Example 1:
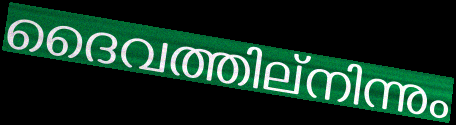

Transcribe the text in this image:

ദൈവത്തില്നിന്നും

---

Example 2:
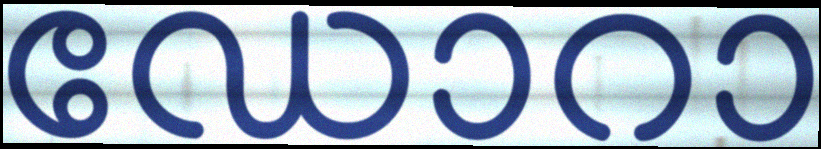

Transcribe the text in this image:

ഡോറാ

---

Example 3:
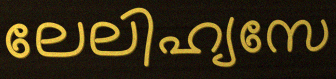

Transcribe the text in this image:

ലേലിഹ്യസേ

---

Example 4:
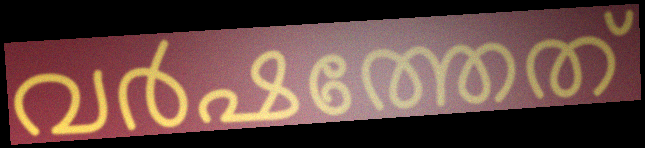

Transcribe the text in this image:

വർഷത്തേത്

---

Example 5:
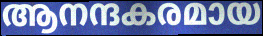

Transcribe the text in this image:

ആനന്ദകരമായ